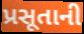
પ્રસૂતાની